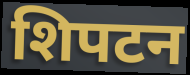
शिपटन